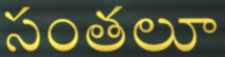
సంతలూ